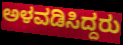
ಅಳವಡಿಸಿದ್ದರು